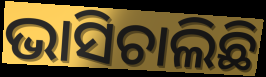
ଭାସିଚାଲିଛି